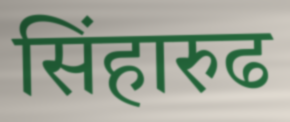
सिंहारुढ